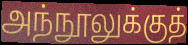
அந்நூலுக்குத்